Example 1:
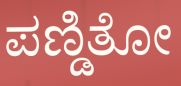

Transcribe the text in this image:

ಪಣ್ಡಿತೋ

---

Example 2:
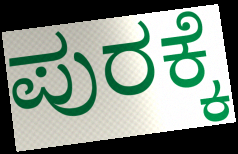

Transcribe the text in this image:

ಪುರಕ್ಕೆ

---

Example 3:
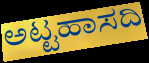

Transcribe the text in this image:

ಅಟ್ಟಹಾಸದಿ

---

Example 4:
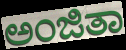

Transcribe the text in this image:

ಅಂಜಿತಾ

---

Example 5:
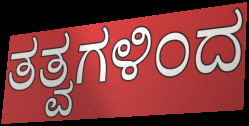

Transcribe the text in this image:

ತತ್ವಗಳಿಂದ